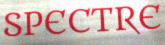
SPECTRE